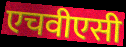
एचवीएसी